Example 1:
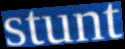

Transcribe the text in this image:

stunt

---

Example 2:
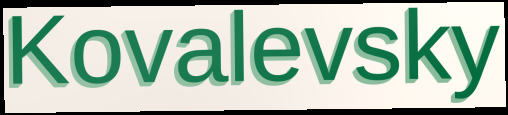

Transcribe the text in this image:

Kovalevsky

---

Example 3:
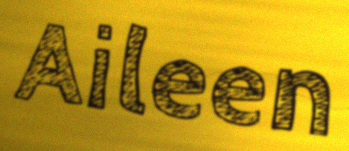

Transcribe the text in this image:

Aileen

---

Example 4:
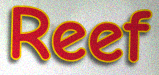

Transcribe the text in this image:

Reef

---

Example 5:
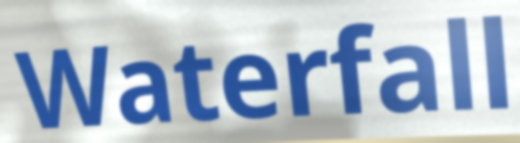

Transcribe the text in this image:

Waterfall